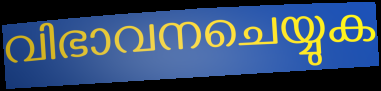
വിഭാവനചെയ്യുക